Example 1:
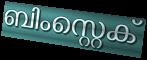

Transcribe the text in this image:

ബിംസ്റ്റെക്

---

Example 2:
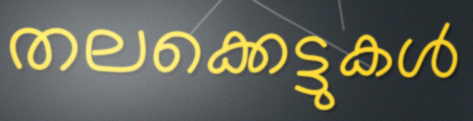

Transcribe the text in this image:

തലക്കെട്ടുകൾ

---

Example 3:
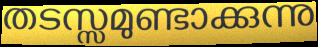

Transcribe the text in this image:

തടസ്സമുണ്ടാക്കുന്നു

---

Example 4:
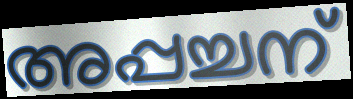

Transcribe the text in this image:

അപ്പച്ചന്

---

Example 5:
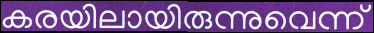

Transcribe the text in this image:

കരയിലായിരുന്നുവെന്ന്